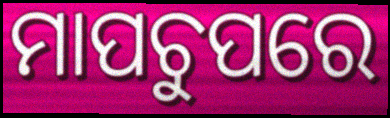
ମାପଚୁପରେ